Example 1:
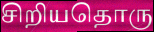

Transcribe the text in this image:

சிறியதொரு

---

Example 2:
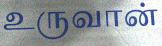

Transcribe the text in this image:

உருவான்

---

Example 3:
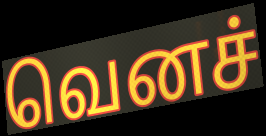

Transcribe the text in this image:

வெனச்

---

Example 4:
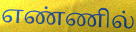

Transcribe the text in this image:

எண்ணில்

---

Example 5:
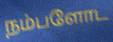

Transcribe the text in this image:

நம்பளோட